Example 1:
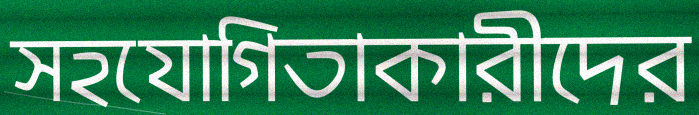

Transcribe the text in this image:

সহযোগিতাকারীদের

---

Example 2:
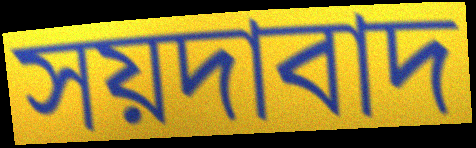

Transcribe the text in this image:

সয়দাবাদ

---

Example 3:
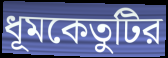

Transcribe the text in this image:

ধূমকেতুটির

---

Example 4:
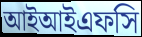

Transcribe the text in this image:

আইআইএফসি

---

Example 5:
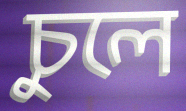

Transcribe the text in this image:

চুলে